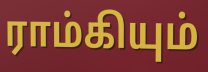
ராம்கியும்